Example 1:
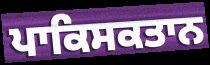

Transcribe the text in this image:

ਪਾਕਿਸਕਤਾਨ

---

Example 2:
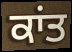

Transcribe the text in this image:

ਕਾਂਤ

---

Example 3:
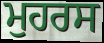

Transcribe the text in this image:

ਮੁਹਰਸ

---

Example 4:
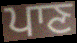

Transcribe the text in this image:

ਪਾਣ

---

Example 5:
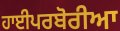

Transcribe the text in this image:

ਹਾਈਪਰਬੋਰੀਆ